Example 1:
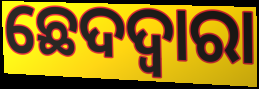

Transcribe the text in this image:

ଛେଦଦ୍ୱାରା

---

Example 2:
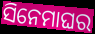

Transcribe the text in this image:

ସିନେମାଘର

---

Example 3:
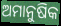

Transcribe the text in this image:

ଅମାନୁଷିକ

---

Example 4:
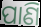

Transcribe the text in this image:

ପାଣି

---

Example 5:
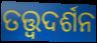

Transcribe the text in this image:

ତତ୍ତ୍ଵଦର୍ଶନ